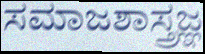
ಸಮಾಜಶಾಸ್ತ್ರಜ್ಞ